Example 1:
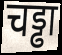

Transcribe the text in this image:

चड्ढा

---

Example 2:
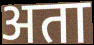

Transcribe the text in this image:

अता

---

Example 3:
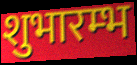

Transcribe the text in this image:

शुभारम्‍भ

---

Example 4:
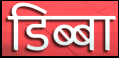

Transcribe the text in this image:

डिब्बा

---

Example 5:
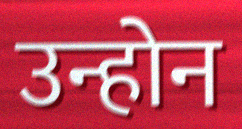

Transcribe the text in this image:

उन्होन